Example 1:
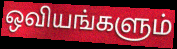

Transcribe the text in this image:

ஒவியங்களும்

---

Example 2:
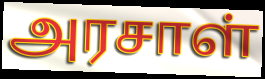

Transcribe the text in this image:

அரசாள்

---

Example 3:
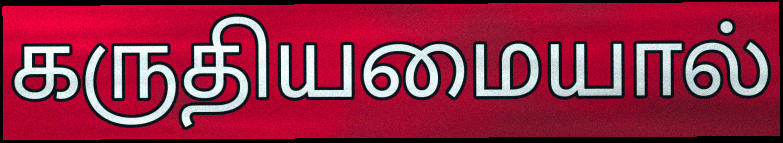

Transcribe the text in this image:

கருதியமையால்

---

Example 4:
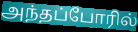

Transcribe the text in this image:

அந்தப்போரில்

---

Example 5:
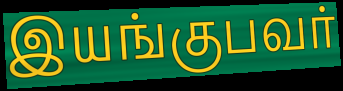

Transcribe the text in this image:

இயங்குபவர்